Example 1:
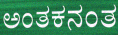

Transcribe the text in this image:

ಅಂತಕನಂತ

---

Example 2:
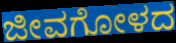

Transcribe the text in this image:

ಜೀವಗೋಳದ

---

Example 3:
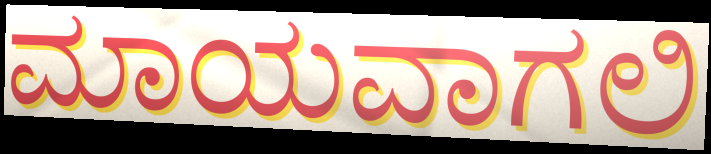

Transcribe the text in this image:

ಮಾಯವಾಗಲಿ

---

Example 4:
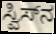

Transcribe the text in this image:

ಸ್ವಿಸ್‌ನ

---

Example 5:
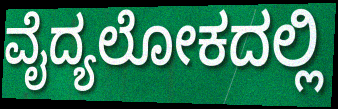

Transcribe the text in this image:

ವೈದ್ಯಲೋಕದಲ್ಲಿ